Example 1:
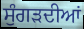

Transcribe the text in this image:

ਸੁੰਗੜਦੀਆਂ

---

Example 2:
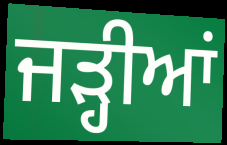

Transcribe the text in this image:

ਜੜ੍ਹੀਆਂ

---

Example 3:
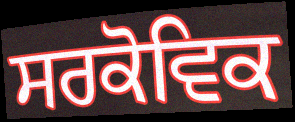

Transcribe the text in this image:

ਸਰਕੋਵਿਕ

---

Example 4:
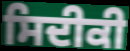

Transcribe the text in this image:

ਸਿਦੀਕੀ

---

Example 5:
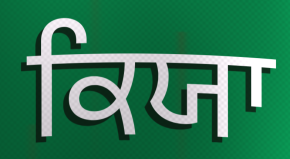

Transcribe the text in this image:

ਕਿਯਾ